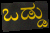
ಒಡ್ಡು